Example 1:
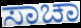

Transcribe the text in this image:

ಸಾಚಾ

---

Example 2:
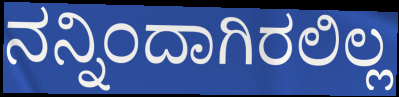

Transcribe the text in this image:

ನನ್ನಿಂದಾಗಿರಲಿಲ್ಲ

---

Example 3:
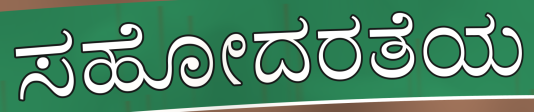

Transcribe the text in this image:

ಸಹೋದರತೆಯ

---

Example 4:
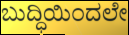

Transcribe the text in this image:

ಬುದ್ಧಿಯಿಂದಲೇ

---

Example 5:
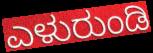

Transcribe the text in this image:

ಎಳುರುಂಡಿ